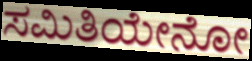
ಸಮಿತಿಯೇನೋ